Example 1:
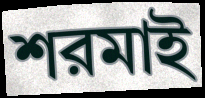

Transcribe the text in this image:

শরমাই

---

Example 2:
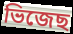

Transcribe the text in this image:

ভিজেছ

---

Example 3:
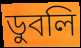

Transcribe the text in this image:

ডুবলি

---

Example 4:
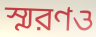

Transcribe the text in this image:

স্মরণও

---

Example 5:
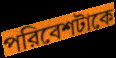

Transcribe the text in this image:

পরিবেশটাকে